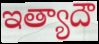
ఇత్యాదౌ